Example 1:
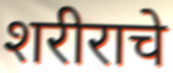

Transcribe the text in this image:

शरीराचे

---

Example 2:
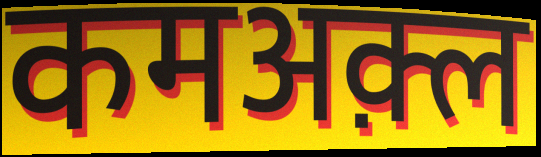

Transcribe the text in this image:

कमअक़्ल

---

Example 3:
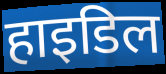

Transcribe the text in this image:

हाइडिल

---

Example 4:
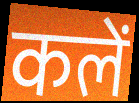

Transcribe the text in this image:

कलें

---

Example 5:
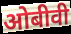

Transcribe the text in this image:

ओबीवी